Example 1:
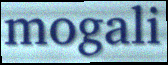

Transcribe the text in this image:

mogali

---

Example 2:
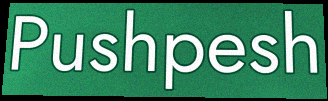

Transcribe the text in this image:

Pushpesh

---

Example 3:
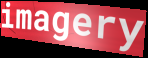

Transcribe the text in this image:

imagery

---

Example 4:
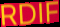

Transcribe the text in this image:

RDIF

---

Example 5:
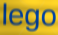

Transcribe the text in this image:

lego